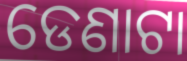
ଡେଣାଟା